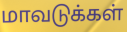
மாவடுக்கள்